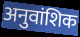
अनुवांशिक